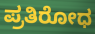
ಪ್ರತಿರೋಧ